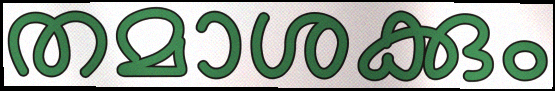
തമാശക്കും